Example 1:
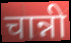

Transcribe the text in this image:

चान्नी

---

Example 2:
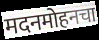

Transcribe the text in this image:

मदनमोहनचा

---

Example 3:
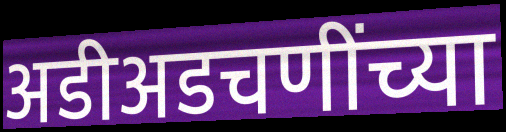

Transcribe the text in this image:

अडीअडचणींच्या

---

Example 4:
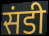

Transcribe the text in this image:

संडी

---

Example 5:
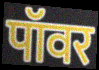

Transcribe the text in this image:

पॉवर